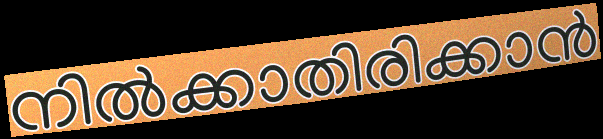
നിൽക്കാതിരിക്കാൻ